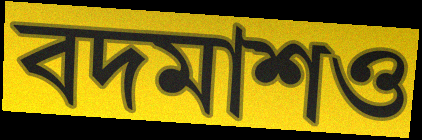
বদমাশও